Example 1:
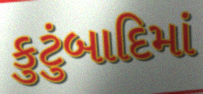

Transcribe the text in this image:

કુટુંબાદિમાં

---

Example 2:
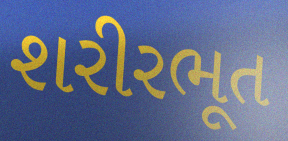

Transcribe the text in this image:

શરીરભૂત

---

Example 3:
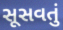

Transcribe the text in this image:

સૂસવતું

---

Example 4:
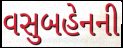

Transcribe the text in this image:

વસુબહેનની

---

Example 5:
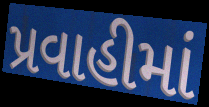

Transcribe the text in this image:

પ્રવાહીમાં